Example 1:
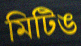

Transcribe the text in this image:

মিটিঙ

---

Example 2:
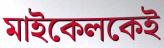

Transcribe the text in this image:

মাইকেলকেই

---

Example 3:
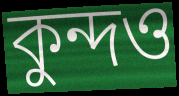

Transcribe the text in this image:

কুন্দও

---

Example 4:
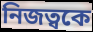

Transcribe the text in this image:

নিজত্বকে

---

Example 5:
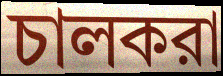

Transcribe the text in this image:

চালকরা